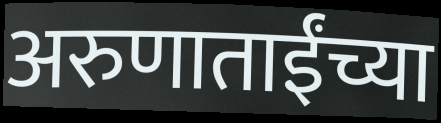
अरुणाताईंच्या